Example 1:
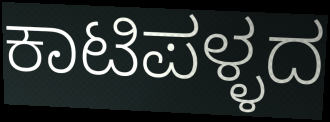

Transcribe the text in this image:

ಕಾಟಿಪಳ್ಳದ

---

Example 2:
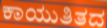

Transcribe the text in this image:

ಕಾಯುತಿತದ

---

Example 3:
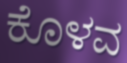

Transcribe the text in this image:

ಕೊಳವ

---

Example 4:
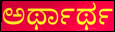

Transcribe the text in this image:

ಅರ್ಥಾರ್ಥ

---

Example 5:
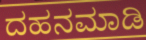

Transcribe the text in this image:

ದಹನಮಾಡಿ